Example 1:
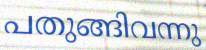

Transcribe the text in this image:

പതുങ്ങിവന്നു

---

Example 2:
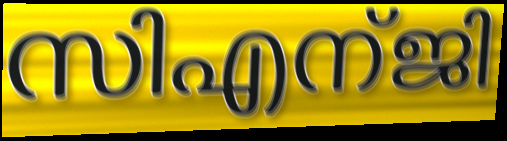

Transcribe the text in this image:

സിഎന്ജി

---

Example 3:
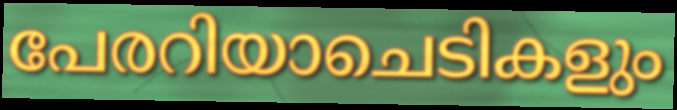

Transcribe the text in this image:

പേരറിയാചെടികളും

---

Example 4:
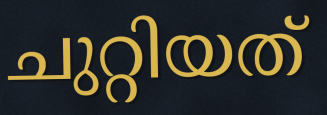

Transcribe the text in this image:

ചുറ്റിയത്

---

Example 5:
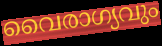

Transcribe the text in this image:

വൈരാഗ്യവും